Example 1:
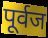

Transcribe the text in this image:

पूर्वज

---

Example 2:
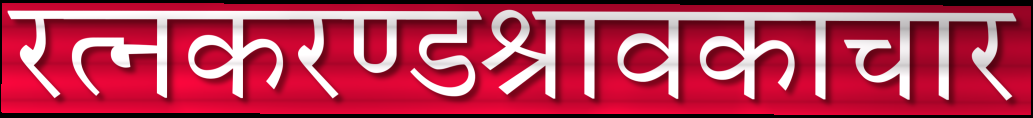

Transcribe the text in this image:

रत्नकरण्डश्रावकाचार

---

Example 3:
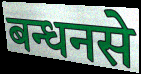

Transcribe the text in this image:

बन्धनसे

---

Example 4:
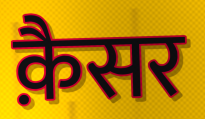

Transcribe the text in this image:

क़ैसर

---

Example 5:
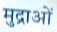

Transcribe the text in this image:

मुद्राओं